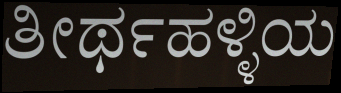
ತೀರ್ಥಹಳ್ಳಿಯ